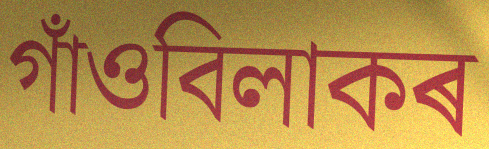
গাঁওবিলাকৰ